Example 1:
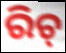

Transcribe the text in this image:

ରିଚ୍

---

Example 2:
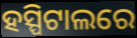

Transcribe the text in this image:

ହସ୍ପିଟାଲରେ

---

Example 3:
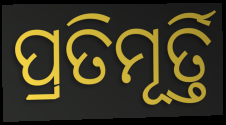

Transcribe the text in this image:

ପ୍ରତିମୂର୍ତ୍ତି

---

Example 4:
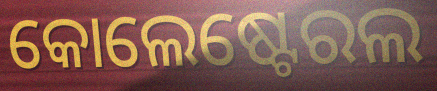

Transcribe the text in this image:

କୋଲେଷ୍ଟେରଲ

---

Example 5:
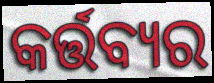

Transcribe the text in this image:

କର୍ତ୍ତବ୍ୟର